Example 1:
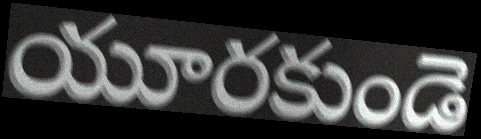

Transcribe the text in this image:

యూరకుండె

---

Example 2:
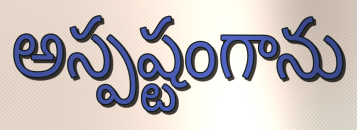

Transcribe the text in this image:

అస్పష్టంగాను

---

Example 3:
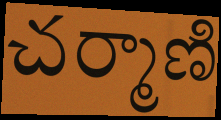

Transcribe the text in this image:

చర్మాణి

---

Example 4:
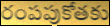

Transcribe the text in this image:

రంపపుకోతకు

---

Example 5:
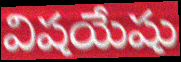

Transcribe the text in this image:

విషయేషు